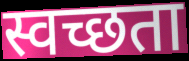
स्वच्छता